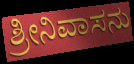
ಶ್ರೀನಿವಾಸನು